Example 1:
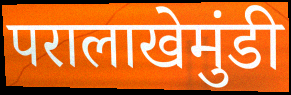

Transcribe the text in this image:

परालाखेमुंडी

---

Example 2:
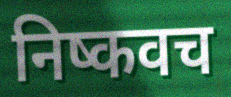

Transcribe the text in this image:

निष्कवच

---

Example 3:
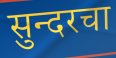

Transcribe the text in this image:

सुन्दरचा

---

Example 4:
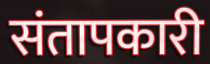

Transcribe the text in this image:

संतापकारी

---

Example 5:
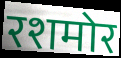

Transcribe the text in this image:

रशमोर